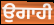
ਉਗਾਹੀ